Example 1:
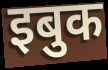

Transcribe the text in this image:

इबुक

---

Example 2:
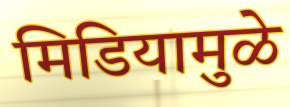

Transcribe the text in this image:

मिडियामुळे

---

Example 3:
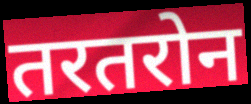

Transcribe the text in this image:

तरतरोन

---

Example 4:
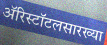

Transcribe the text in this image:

ॲरिस्टॉटलसारख्या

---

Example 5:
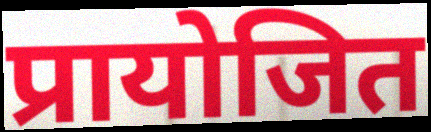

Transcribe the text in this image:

प्रायोजित